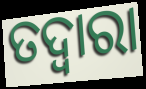
ତଦ୍ବାରା